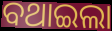
ବଥାଇଲା